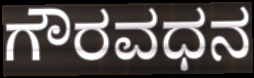
ಗೌರವಧನ